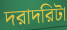
দরাদরিটা